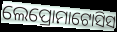
ଲେପ୍ରୋମାଟୋସିସ